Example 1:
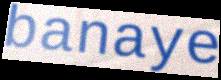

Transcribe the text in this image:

banaye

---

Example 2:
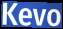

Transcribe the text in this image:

Kevo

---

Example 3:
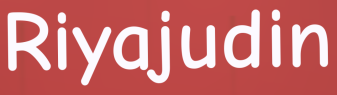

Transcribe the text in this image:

Riyajudin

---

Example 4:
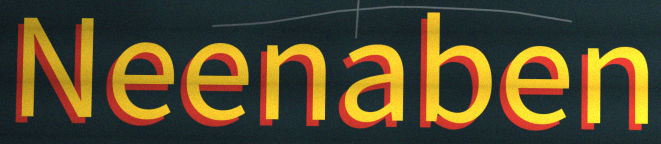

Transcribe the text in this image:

Neenaben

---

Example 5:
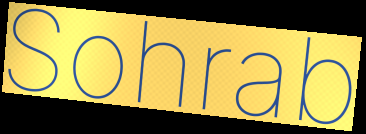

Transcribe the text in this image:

Sohrab